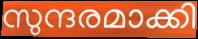
സുന്ദരമാക്കി